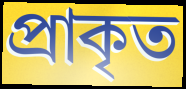
প্ৰাকৃত